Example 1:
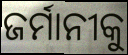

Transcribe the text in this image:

ଜର୍ମାନୀକୁ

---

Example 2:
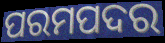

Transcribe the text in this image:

ପରମପଦର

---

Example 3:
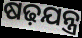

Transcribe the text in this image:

ଷଢ଼ଯନ୍ତ୍ର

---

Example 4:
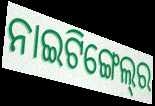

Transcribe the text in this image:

ନାଇଟିଙ୍ଗେଲ୍‌ର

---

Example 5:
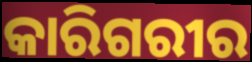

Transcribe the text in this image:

କାରିଗରୀର